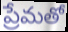
ప్రేమతో